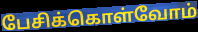
பேசிக்கொள்வோம்